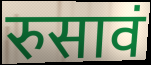
रुसावं